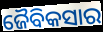
ଜୈବିକସାର